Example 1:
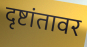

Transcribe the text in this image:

दृष्टांतावर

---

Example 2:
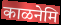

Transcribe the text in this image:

काळनेमि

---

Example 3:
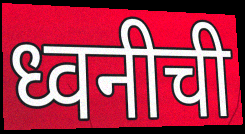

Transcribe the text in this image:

ध्वनीची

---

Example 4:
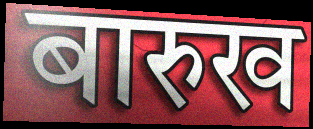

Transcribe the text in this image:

बारुख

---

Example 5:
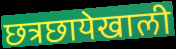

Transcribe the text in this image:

छत्रछायेखाली